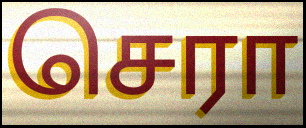
செரா